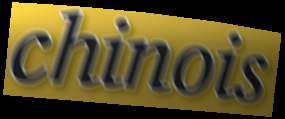
chinois